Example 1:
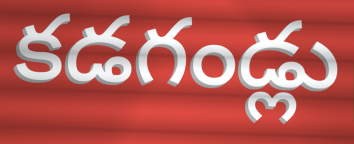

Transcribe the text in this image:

కడగండ్లు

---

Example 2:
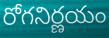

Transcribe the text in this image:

రోగనిర్ణయం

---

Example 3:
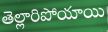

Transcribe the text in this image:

తెల్లారిపోయాయి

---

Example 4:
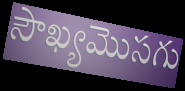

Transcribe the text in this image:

సౌఖ్యమొసగు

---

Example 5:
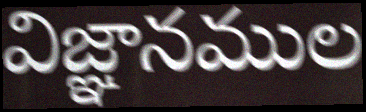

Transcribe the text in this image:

విజ్ఞానముల